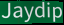
Jaydip